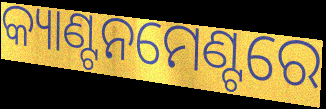
କ୍ୟାଣ୍ଟନମେଣ୍ଟରେ